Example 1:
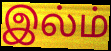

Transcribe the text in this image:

இல்ம்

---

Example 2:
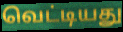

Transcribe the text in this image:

வெட்டியது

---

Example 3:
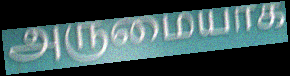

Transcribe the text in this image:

அருமையாக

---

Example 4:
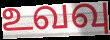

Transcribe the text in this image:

உவவு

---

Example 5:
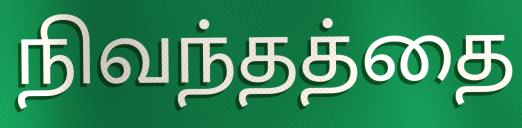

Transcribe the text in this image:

நிவந்தத்தை